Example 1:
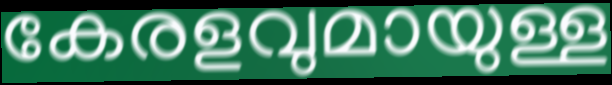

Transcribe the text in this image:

കേരളവുമായുള്ള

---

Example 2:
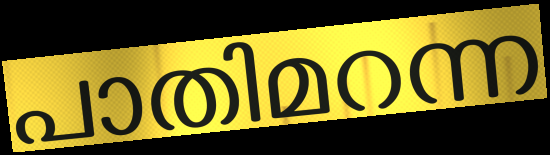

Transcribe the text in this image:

പാതിമറന്ന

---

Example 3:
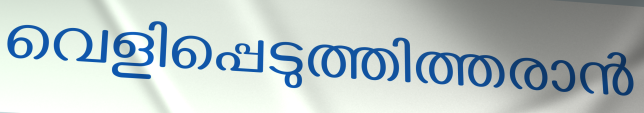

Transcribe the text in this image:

വെളിപ്പെടുത്തിത്തരാൻ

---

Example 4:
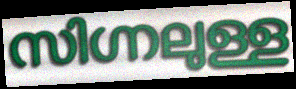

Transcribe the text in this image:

സിഗ്നലുള്ള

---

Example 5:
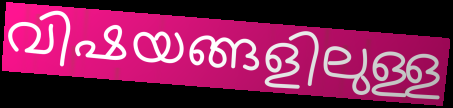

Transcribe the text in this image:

വിഷയങ്ങളിലുള്ള